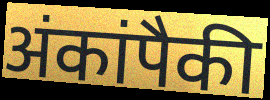
अंकांपैकी